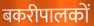
बकरीपालकों